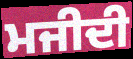
ਮਜੀਦੀ